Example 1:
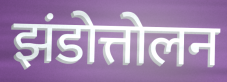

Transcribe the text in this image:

झंडोत्तोलन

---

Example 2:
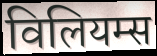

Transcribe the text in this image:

विलियम्स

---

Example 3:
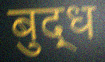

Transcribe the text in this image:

बुद्ध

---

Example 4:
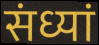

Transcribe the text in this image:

संध्यां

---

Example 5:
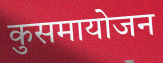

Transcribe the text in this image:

कुसमायोजन